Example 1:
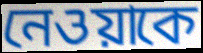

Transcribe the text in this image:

নেওয়াকে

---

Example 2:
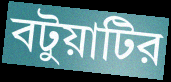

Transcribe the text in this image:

বটুয়াটির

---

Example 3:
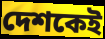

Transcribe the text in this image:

দেশকেই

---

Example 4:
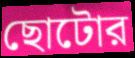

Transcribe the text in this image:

ছোটোর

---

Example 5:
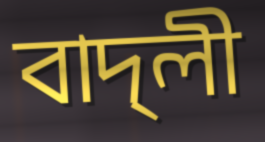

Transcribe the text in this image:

বাদ্‌লী